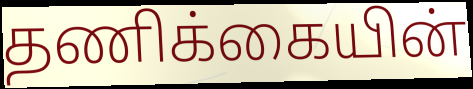
தணிக்கையின்